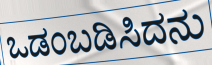
ಒಡಂಬಡಿಸಿದನು